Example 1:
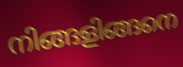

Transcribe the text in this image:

നിങ്ങളിങ്ങനെ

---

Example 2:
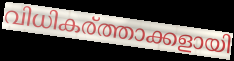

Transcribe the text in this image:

വിധികര്ത്താക്കളായി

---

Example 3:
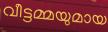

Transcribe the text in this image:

വീട്ടമ്മയുമായ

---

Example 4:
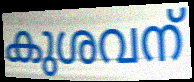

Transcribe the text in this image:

കുശവന്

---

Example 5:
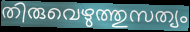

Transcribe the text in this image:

തിരുവെഴുത്തുസത്യം